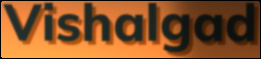
Vishalgad